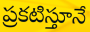
ప్రకటిస్తూనే